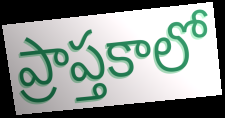
ప్రాప్తకాలో